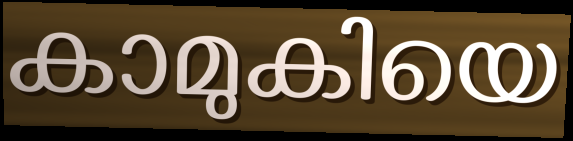
കാമുകിയെ